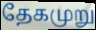
தேகமுறு